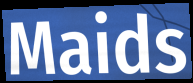
Maids